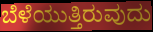
ಬೆಳೆಯುತ್ತಿರುವುದು